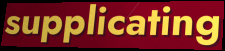
supplicating